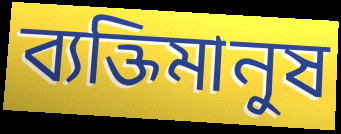
ব্যক্তিমানুষ